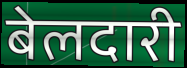
बेलदारी